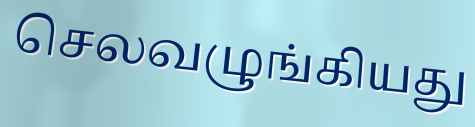
செலவழுங்கியது